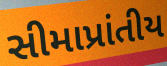
સીમાપ્રાંતીય